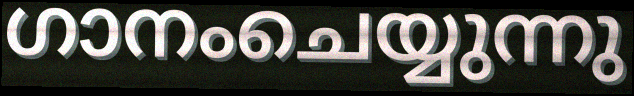
ഗാനംചെയ്യുന്നു